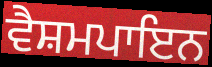
ਵੈਸ਼ਮਪਾਇਨ